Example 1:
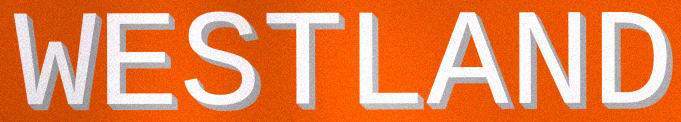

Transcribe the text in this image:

WESTLAND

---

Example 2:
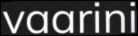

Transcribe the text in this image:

vaarini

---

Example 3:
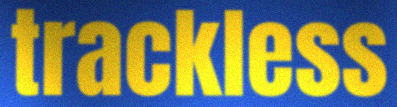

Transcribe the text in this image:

trackless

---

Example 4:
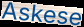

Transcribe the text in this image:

Askese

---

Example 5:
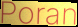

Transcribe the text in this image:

Poran